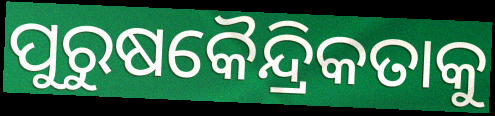
ପୁରୁଷକୈନ୍ଦ୍ରିକତାକୁ